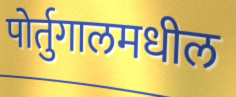
पोर्तुगालमधील